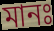
মানঃ